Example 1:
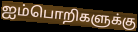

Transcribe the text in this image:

ஐம்பொறிகளுக்கு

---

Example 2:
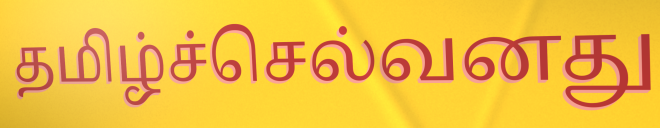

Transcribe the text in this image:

தமிழ்ச்செல்வனது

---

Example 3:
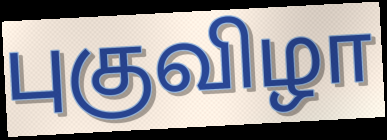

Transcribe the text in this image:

புகுவிழா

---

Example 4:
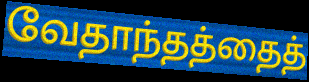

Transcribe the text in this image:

வேதாந்தத்தைத்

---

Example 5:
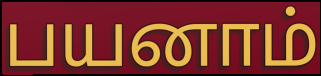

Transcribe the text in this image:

பயனாம்